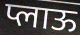
प्लाऊ